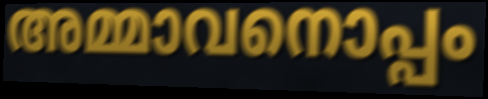
അമ്മാവനൊപ്പം